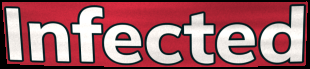
Infected